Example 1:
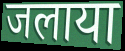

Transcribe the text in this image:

जलाया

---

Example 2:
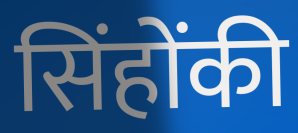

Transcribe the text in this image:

सिंहोंकी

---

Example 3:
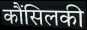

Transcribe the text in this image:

कौंसिलकी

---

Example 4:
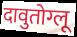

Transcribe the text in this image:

दावुतोग्लू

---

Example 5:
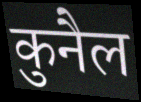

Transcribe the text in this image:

कुनैल